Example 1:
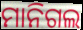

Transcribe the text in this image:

ମାନିଗଲ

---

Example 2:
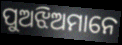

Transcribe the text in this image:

ପୁଅଝିଅମାନେ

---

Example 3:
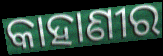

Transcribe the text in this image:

କାହାଣୀର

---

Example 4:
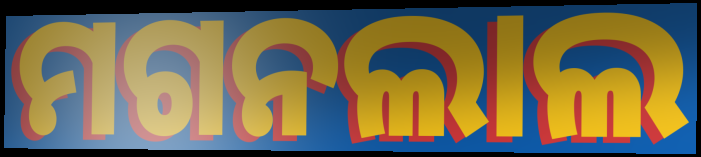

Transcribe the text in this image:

ମଗନଲାଲ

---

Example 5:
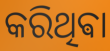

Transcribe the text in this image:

କରିଥିଵା